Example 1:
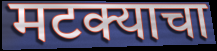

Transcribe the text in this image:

मटक्याचा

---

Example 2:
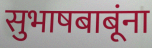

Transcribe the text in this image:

सुभाषबाबूंना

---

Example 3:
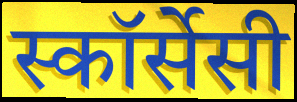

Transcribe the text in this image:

स्कॉर्सेसी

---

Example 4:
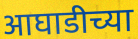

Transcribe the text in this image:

आघाडीच्या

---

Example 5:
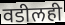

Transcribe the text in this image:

वडीलही